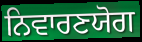
ਨਿਵਾਰਣਯੋਗ